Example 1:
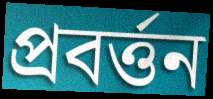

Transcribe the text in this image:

প্ৰবৰ্ত্তন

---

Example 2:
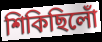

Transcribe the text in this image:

শিকিছিলোঁ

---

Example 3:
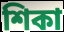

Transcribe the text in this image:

শিকা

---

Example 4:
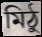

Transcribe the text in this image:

মিঠু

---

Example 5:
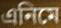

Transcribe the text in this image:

এনিমে